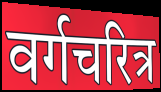
वर्गचरित्र